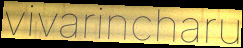
vivarincharu